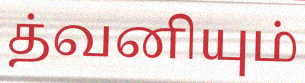
த்வனியும்